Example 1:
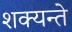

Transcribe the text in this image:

शक्यन्ते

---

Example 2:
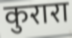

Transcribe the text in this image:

कुरारा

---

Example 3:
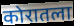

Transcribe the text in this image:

कोरातला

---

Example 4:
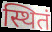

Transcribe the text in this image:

स्थितं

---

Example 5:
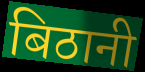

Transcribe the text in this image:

बिठानी